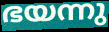
ഭയന്നു